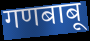
गणबाबू